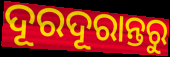
ଦୂରଦୂରାନ୍ତରୁ